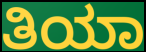
ತಿಯಾ